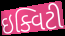
ઇક્વિટી